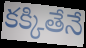
కక్కితేనే